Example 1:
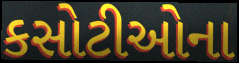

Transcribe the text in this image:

કસોટીઓના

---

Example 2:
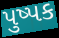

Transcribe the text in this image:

પુષ્પક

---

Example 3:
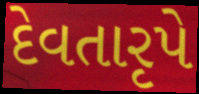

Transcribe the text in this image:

દેવતારૃપે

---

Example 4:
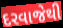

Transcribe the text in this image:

દરવાજેથી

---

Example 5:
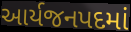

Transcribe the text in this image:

આર્યજનપદમાં